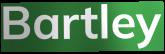
Bartley